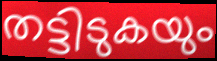
തട്ടിടുകയും